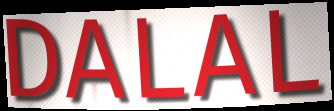
DALAL